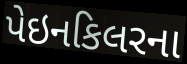
પેઇનકિલરના